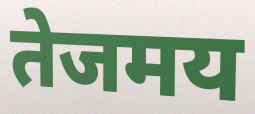
तेजमय